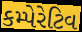
કમ્પેરેટિવ